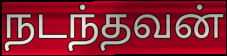
நடந்தவன்